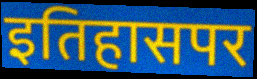
इतिहासपर